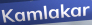
Kamlakar